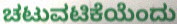
ಚಟುವಟಿಕೆಯೆಂದು